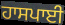
ਹਾਸਪਾਈ